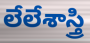
లేలేశాస్త్రి